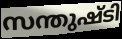
സന്തുഷ്ടി